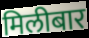
मिलीबार